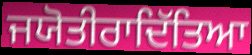
ਜਯੋਤੀਰਾਦਿੱਤਿਆ